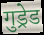
गुड्रेड